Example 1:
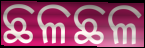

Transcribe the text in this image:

ଛଳଛଳ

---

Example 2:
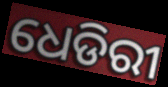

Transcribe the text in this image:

ଧେଡିରୀ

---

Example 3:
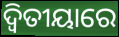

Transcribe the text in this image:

ଦ୍ଵିତୀୟାରେ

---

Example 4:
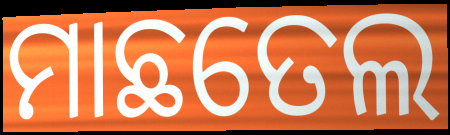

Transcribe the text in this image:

ମାଛତେଲ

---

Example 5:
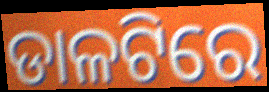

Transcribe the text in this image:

ଡାଳଟିରେ